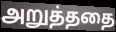
அறுத்ததை